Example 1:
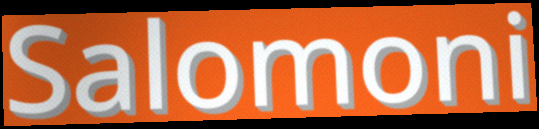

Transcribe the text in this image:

Salomoni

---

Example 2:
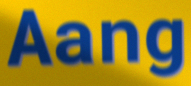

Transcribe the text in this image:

Aang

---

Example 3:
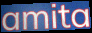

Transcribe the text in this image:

amita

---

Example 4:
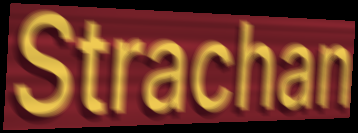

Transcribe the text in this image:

Strachan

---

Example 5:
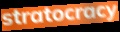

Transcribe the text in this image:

stratocracy